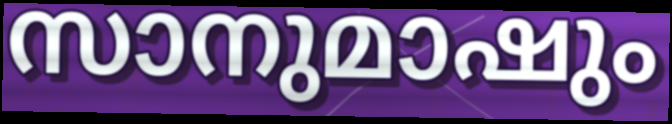
സാനുമാഷും